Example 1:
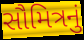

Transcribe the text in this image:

સૌમિત્રનું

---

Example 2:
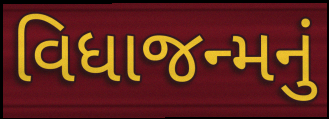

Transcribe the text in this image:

વિધાજન્મનું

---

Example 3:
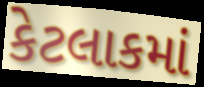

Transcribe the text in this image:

કેટલાકમાં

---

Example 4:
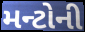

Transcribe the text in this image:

મન્ટોની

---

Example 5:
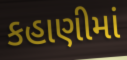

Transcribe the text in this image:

કહાણીમાં